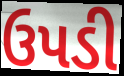
ઉપડી